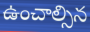
ఉంచాల్సిన